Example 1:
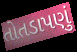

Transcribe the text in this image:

તોતડાપણું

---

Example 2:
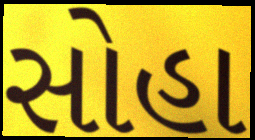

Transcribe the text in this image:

સોહા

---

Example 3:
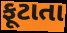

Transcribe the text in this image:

ફૂટાતા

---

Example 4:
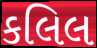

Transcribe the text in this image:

કલિલ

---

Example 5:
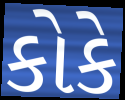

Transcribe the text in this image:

કોકે